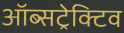
ऑब्सट्रेक्टिव